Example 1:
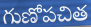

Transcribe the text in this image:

గుణోపచిత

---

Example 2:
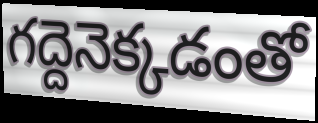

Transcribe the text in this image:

గద్దెనెక్కడంతో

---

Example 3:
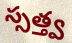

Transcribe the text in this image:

స్సత్త్వ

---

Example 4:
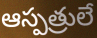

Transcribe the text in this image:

ఆస్పత్రులే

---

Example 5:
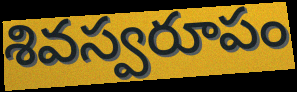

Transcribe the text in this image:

శివస్వరూపం